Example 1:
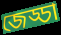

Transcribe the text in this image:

জেড্ডা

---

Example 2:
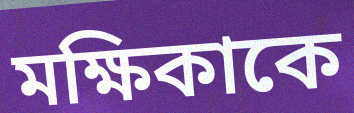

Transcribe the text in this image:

মক্ষিকাকে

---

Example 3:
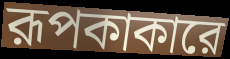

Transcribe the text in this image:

রূপকাকারে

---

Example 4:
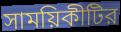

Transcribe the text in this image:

সাময়িকীটির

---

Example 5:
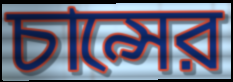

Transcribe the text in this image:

চান্সের